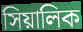
সিয়ালিক